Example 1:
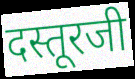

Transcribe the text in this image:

दस्तूरजी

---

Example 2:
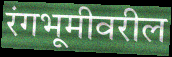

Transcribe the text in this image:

रंगभूमीवरील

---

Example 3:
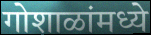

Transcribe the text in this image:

गोशाळांमध्ये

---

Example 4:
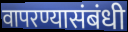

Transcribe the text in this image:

वापरण्यासंबंधी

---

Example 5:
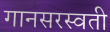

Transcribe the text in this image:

गानसरस्वती